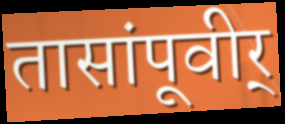
तासांपूवीर्